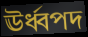
ঊর্ধ্বপদ